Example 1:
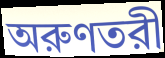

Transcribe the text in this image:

অরুণতরী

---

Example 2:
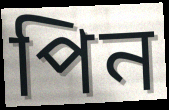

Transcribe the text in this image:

পিন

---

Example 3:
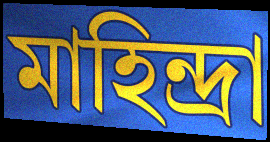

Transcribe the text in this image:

মাহিন্দ্রা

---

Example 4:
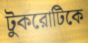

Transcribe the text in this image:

টুকরোটিকে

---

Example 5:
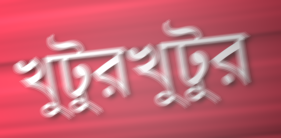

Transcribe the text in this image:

খুটুরখুটুর